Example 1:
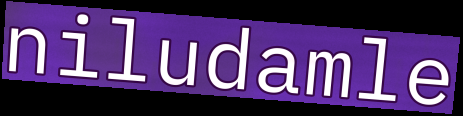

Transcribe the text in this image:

niludamle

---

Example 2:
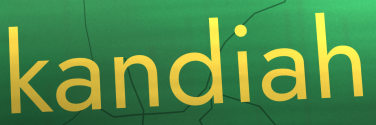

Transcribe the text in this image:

kandiah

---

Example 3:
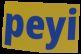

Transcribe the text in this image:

peyi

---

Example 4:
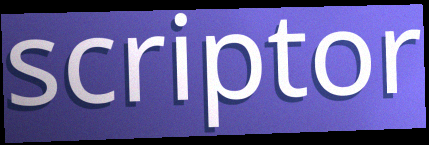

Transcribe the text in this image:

scriptor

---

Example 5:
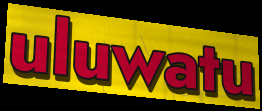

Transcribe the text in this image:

uluwatu